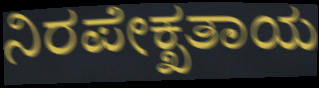
ನಿರಪೇಕ್ಖತಾಯ